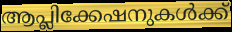
ആപ്ലിക്കേഷനുകൾക്ക്